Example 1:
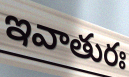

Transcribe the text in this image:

ఇవాతురః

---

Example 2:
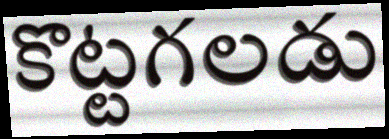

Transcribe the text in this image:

కొట్టగలడు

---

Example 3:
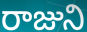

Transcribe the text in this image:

రాజుని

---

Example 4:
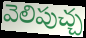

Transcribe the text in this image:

వెలిపుచ్చ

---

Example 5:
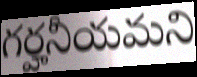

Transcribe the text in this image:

గర్హనీయమని